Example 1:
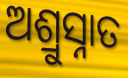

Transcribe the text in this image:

ଅଶ୍ରୁସ୍ନାତ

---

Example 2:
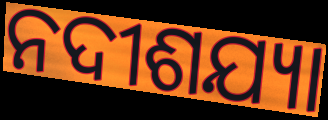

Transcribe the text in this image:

ନଦୀଶଯ୍ୟା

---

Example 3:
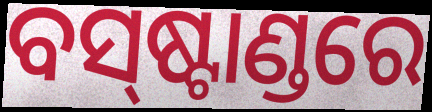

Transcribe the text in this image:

ବସ୍‌ଷ୍ଟାଣ୍ଡରେ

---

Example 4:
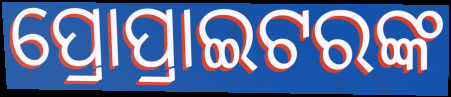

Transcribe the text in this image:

ପ୍ରୋପ୍ରାଇଟରଙ୍କ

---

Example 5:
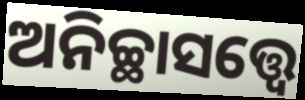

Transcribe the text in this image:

ଅନିଚ୍ଛାସତ୍ତ୍ବେ